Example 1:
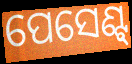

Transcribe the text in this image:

ପେସେଣ୍ଟ୍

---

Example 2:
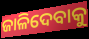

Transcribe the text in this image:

ଜାଳିଦେବାକୁ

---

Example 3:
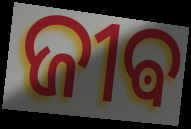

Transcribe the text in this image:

ଜୀଵ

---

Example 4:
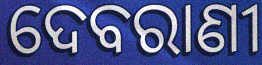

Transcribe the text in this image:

ଦେବରାଣୀ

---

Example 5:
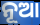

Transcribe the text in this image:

ନୂଆ